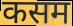
कसम